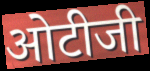
ओटीजी